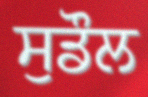
ਸੁਡੌਲ